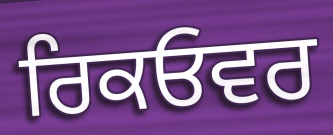
ਰਿਕਓਵਰ